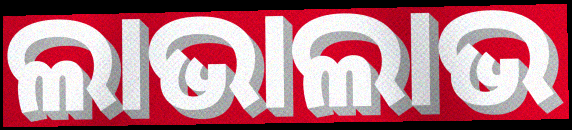
ଲାଭାଲାଭ